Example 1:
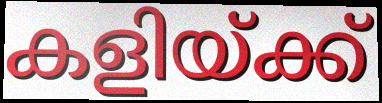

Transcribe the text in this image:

കളിയ്ക്ക്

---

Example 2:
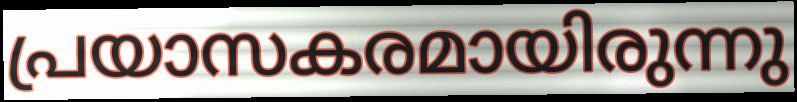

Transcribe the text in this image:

പ്രയാസകരമായിരുന്നു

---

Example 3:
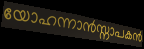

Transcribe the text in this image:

യോഹന്നാൻസ്നാപകൻ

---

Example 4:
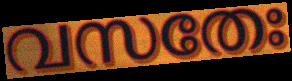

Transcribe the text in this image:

വസതേഃ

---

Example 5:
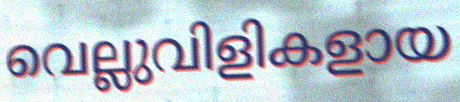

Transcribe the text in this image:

വെല്ലുവിളികളായ